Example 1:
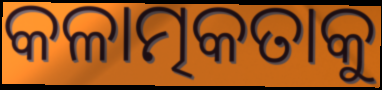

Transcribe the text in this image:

କଳାତ୍ମକତାକୁ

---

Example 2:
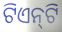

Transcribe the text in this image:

ଟିଏନ୍‌ଟି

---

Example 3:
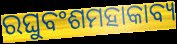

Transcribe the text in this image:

ରଘୁବଂଶମହାକାବ୍ୟ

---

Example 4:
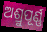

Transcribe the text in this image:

ଅଶ୍ରୁପୂର୍ଣ୍ଣ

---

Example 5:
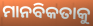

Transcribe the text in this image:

ମାନବିକତାକୁ